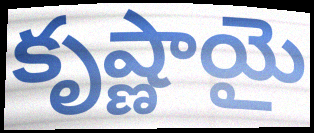
కృష్ణాయై